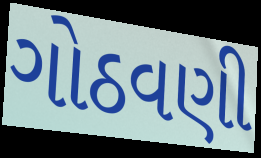
ગોઠવણી